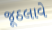
જૂઠલાવે